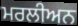
ਮਰਲੀਅਨ